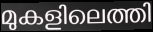
മുകളിലെത്തി